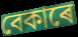
বেকাৰে